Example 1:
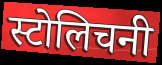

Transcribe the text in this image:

स्टोलिचनी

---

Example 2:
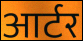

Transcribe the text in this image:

आर्टर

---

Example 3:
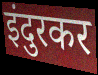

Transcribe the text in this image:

इंदुरकर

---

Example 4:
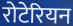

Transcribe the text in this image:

रोटेरियन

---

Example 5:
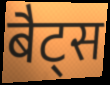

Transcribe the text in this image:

बैट्स